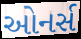
ઓનર્સ